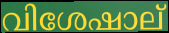
വിശേഷാല്